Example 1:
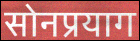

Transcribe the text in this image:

सोनप्रयाग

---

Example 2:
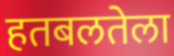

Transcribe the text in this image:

हतबलतेला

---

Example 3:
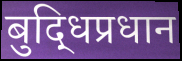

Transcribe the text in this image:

बुद्धिप्रधान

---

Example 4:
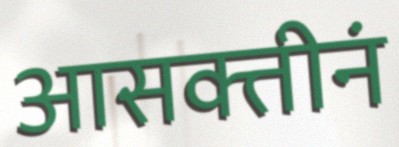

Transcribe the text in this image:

आसक्तीनं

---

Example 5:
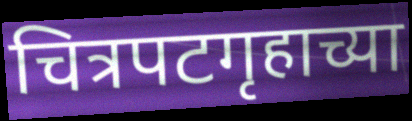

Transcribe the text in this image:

चित्रपटगृहाच्या